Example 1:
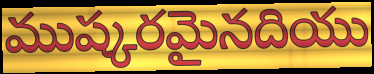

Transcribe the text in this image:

ముష్కరమైనదియు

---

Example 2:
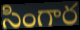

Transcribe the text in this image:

సింగార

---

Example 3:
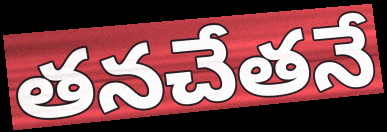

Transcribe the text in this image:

తనచేతనే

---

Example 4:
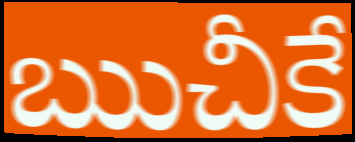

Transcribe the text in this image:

ఋచీకే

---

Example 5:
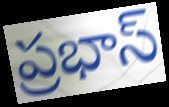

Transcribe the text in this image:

ప్రభాస్